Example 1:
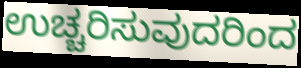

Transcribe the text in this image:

ಉಚ್ಚರಿಸುವುದರಿಂದ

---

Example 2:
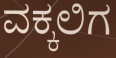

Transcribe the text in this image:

ವಕ್ಕಲಿಗ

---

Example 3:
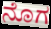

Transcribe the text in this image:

ನೊಗ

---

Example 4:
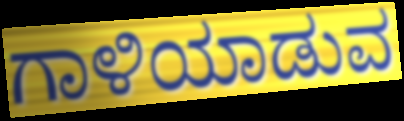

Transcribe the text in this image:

ಗಾಳಿಯಾಡುವ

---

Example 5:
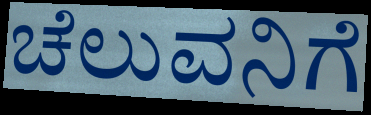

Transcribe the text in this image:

ಚೆಲುವನಿಗೆ